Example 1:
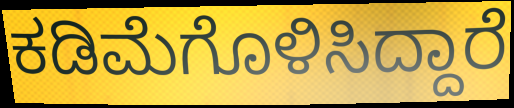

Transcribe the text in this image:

ಕಡಿಮೆಗೊಳಿಸಿದ್ದಾರೆ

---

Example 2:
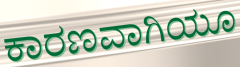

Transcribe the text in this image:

ಕಾರಣವಾಗಿಯೂ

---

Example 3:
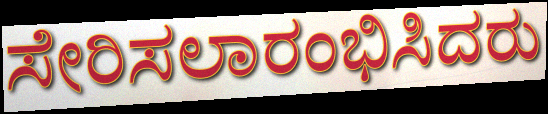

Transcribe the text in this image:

ಸೇರಿಸಲಾರಂಭಿಸಿದರು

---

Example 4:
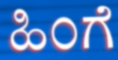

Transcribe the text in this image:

ಹಿಂಗೆ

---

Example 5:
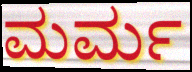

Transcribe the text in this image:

ಮರ್ಮ